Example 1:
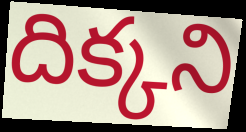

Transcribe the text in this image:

దిక్కని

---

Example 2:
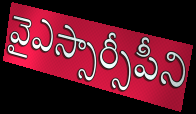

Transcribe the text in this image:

వైఎస్సార్సీపీని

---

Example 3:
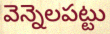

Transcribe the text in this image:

వెన్నెలపట్టు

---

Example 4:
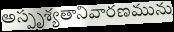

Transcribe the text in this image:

అస్పృశ్యతానివారణమును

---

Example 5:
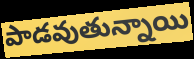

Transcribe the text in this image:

పాడవుతున్నాయి